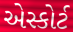
એસ્કોર્ટ